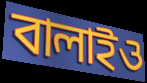
বালাইও